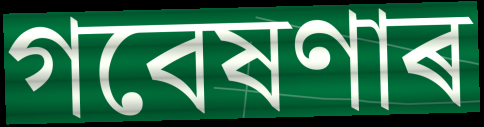
গবেষণাৰ